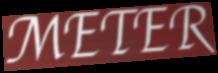
METER